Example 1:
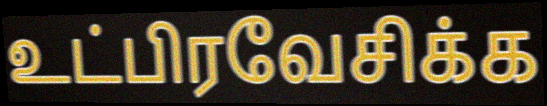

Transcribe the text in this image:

உட்பிரவேசிக்க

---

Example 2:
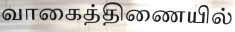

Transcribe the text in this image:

வாகைத்திணையில்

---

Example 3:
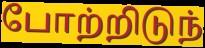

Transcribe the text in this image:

போற்றிடுந்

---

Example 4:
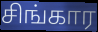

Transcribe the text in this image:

சிங்கார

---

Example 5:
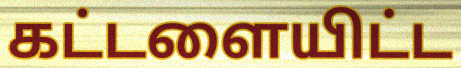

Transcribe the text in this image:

கட்டளையிட்ட